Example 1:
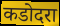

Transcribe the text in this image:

कडोदरा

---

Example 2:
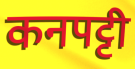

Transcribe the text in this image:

कनपट्टी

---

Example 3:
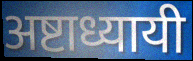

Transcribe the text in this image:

अष्टाध्यायी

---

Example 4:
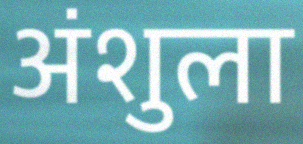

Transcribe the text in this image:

अंशुला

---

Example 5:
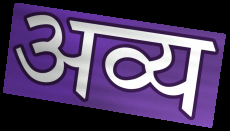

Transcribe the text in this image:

अव्य